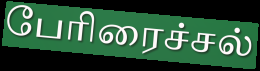
பேரிரைச்சல்